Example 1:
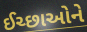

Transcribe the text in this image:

ઈચ્છાઓને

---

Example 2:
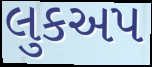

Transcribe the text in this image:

લુકઅપ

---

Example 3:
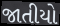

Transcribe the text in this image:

જાતીયો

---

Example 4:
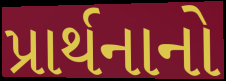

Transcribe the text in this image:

પ્રાર્થનાનો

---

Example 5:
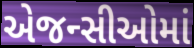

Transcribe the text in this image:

એજન્સીઓમાં